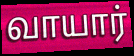
வாயார்